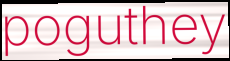
poguthey